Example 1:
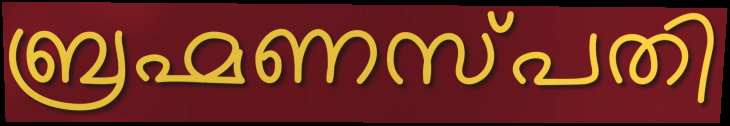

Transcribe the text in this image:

ബ്രഹ്മണസ്പതി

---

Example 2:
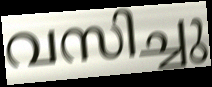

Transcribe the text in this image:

വസിച്ചു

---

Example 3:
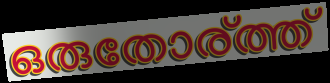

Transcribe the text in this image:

ഒരുതോര്ത്ത്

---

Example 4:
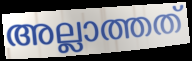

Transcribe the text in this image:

അല്ലാത്തത്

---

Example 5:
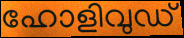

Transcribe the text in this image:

ഹോളിവുഡ്